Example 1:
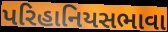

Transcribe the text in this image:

પરિહાનિયસભાવા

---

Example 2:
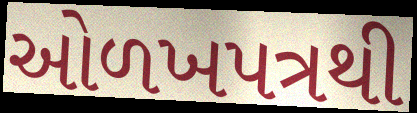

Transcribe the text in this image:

ઓળખપત્રથી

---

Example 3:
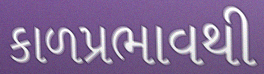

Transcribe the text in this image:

કાળપ્રભાવથી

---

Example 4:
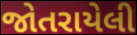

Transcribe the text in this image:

જોતરાયેલી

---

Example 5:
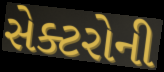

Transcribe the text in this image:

સેક્ટરોની